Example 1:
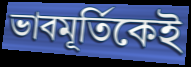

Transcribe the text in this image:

ভাবমূর্তিকেই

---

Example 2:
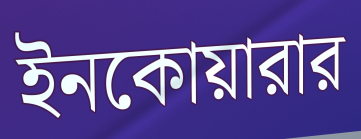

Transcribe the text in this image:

ইনকোয়ারার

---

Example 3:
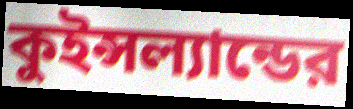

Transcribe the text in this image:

কুইন্সল্যান্ডের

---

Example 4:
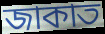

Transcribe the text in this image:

জাকাত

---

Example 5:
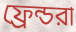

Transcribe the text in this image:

ফ্রেন্ডরা